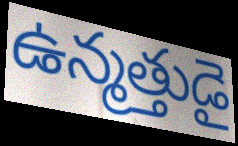
ఉన్మత్తుడై